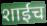
शाईच